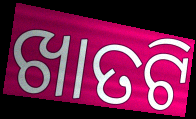
ଖାତଟି